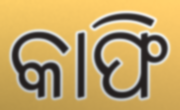
କାଫି